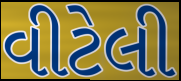
વીટેલી